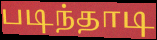
படிந்தாடி